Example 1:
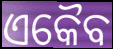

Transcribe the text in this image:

ଏକୈବ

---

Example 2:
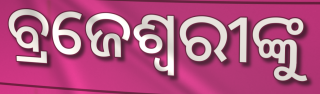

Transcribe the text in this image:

ବ୍ରଜେଶ୍ୱରୀଙ୍କୁ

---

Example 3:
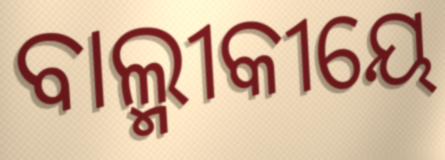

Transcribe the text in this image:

ବାଲ୍ମୀକୀୟେ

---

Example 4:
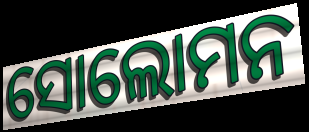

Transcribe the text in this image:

ସୋଲୋମନ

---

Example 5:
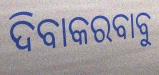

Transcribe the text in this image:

ଦିବାକରବାବୁ